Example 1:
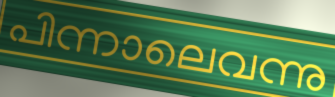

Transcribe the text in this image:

പിന്നാലെവന്നു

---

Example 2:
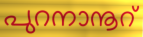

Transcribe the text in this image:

പുറനാനൂറ്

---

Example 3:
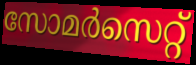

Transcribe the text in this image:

സോമർസെറ്റ്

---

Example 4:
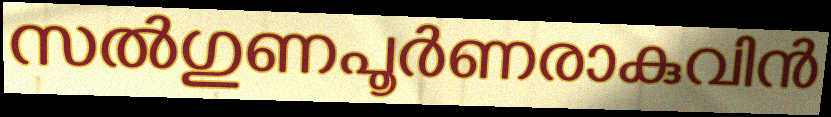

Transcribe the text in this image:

സൽഗുണപൂർണരാകുവിൻ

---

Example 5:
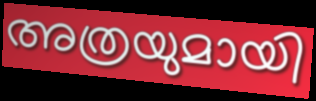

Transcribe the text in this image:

അത്രയുമായി